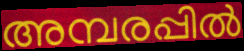
അമ്പരപ്പിൽ